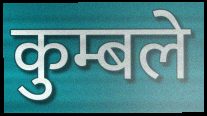
कुम्बले